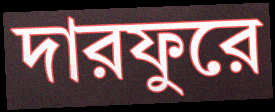
দারফুরে